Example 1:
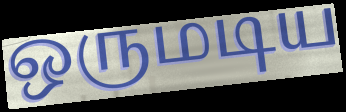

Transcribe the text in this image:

ஒருமடிய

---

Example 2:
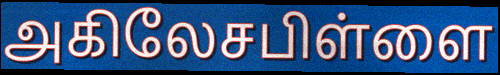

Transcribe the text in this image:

அகிலேசபிள்ளை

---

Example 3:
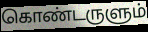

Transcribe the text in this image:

கொண்டருளும்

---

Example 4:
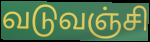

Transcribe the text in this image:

வடுவஞ்சி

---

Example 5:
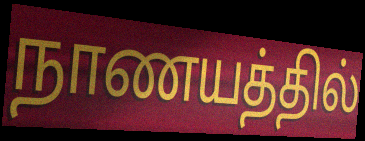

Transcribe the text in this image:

நாணயத்தில்